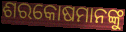
ଶରକୋଷମାନଙ୍କୁ